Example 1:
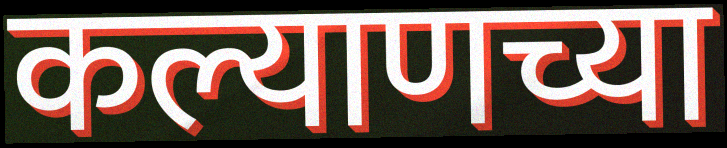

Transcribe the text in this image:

कल्याणच्या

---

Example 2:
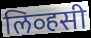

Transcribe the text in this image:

लिव्हसी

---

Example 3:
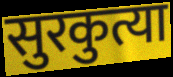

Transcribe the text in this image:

सुरकुत्या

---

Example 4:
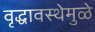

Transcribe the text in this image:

वृद्धावस्थेमुळे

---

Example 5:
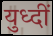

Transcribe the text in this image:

युध्दीं